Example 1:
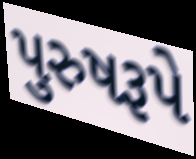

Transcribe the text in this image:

પુરુષરૂપે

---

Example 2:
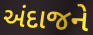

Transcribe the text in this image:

અંદાજને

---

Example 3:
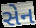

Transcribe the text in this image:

સેન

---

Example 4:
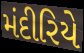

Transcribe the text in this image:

મંદીરિયે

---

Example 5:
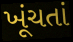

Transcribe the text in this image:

ખૂંચતાં